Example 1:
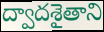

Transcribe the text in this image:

ద్వాదశైతాని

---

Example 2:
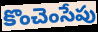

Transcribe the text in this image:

కొంచెంసేపు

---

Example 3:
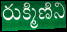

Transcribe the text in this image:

రుక్మిణిని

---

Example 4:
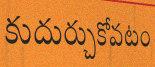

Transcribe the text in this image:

కుదుర్చుకోవటం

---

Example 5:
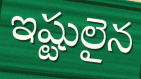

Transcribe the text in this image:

ఇష్టులైన